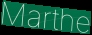
Marthe